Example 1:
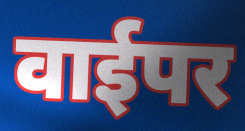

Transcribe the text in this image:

वाईपर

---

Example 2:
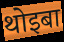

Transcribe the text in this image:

थोइबा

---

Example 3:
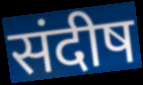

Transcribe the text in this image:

संदीष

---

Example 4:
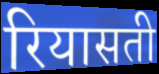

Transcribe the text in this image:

रियासती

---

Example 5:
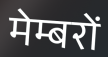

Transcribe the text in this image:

मेम्बरों